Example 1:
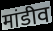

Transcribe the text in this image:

मांडीव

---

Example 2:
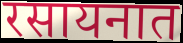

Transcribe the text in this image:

रसायनात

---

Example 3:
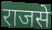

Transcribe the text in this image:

राजसे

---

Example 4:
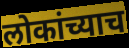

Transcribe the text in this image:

लोकांच्याच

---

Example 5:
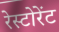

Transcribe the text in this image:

रेस्टोरेंट